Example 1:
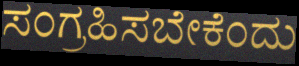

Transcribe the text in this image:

ಸಂಗ್ರಹಿಸಬೇಕೆಂದು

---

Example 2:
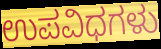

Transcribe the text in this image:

ಉಪವಿಧಗಳು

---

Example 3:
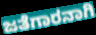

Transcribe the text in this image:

ಜತೆಗಾರನಾಗಿ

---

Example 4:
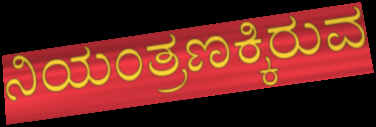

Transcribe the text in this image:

ನಿಯಂತ್ರಣಕ್ಕಿರುವ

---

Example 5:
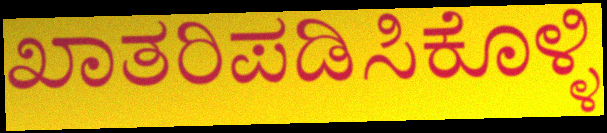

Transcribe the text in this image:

ಖಾತರಿಪಡಿಸಿಕೊಳ್ಳಿ